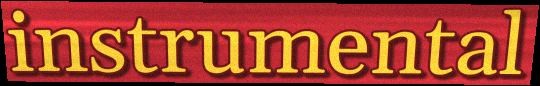
instrumental